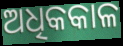
ଅଧିକକାଳ